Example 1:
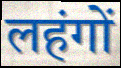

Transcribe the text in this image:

लहंगों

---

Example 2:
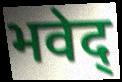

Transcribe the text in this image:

भवेद्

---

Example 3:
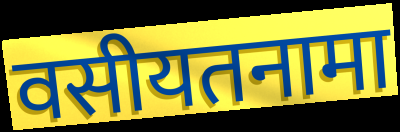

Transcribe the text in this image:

वसीयतनामा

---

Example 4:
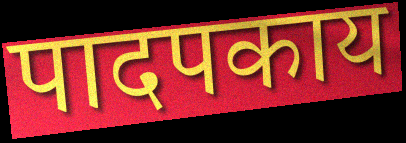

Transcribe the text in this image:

पादपकाय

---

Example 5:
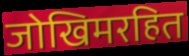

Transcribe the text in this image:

जोखिमरहित